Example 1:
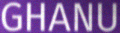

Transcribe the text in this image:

GHANU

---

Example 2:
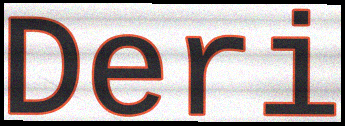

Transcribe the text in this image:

Deri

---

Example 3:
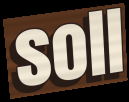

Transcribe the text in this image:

soll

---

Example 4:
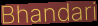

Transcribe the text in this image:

Bhandari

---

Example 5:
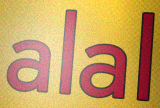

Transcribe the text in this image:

alal